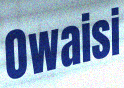
Owaisi